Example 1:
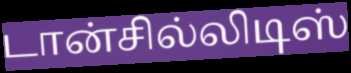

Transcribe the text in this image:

டான்சில்லிடிஸ்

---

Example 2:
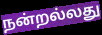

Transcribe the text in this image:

நன்றல்லது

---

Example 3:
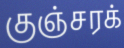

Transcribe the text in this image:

குஞ்சரக்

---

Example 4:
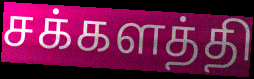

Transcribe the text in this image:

சக்களத்தி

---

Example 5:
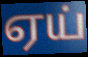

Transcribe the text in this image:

ஏய்